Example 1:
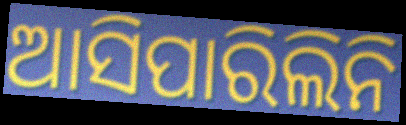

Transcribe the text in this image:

ଆସିପାରିଲିନି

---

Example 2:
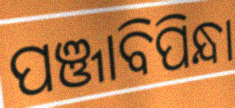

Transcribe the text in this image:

ପଞ୍ଜାବିପିନ୍ଧା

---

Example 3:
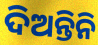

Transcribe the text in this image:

ଦିଅନ୍ତିନି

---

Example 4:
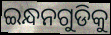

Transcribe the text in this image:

ଇନ୍ଧନଗୁଡିକୁ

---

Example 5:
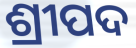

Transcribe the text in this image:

ଶ୍ରୀପଦ